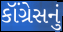
કૉંગ્રેસનું